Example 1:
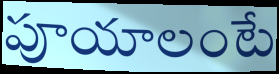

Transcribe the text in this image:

పూయాలంటే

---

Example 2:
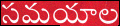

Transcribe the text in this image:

సమయాల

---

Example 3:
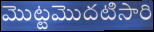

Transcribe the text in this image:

మొట్టమొదటిసారి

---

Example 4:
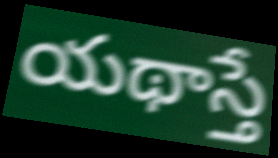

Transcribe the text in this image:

యథాస్తే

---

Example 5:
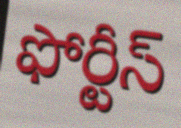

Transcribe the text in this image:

ఫోర్టీస్